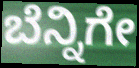
ಬೆನ್ನಿಗೇ